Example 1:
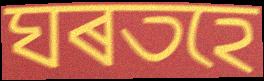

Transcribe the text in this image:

ঘৰতহে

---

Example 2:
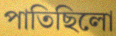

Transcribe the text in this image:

পাতিছিলো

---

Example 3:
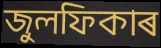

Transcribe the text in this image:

জুলফিকাৰ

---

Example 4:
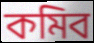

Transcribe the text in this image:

কমিব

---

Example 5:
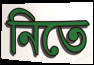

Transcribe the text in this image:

নিতে